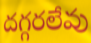
దగ్గరలేవు